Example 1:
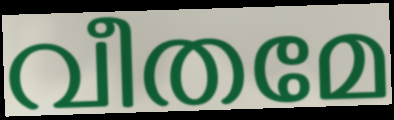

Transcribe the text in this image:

വീതമേ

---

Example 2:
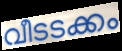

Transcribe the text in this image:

വീടടക്കം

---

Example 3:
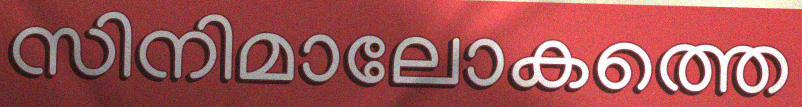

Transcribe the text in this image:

സിനിമാലോകത്തെ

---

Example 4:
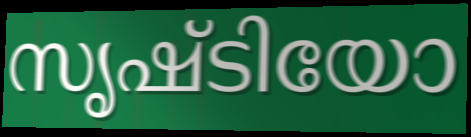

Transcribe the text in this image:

സൃഷ്ടിയോ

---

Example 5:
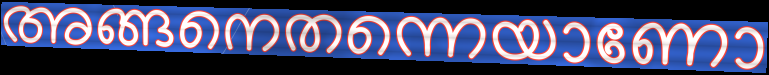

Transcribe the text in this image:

അങ്ങനെതന്നെയാണോ